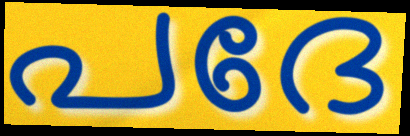
പദേ